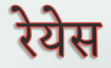
रेयेस